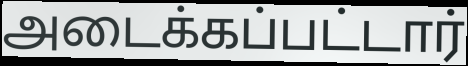
அடைக்கப்பட்டார்